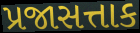
પ્રજાસત્તાક